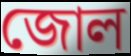
জোল